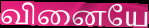
வினையே